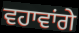
ਵਹਾਵਾਂਗੇ